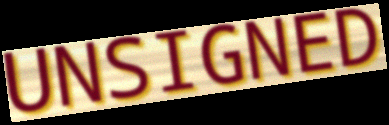
UNSIGNED